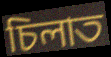
চিলাত